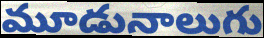
మూడునాలుగు